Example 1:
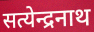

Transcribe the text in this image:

सत्येन्द्रनाथ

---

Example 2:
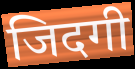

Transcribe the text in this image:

जिदगी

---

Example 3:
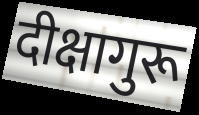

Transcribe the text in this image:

दीक्षागुरू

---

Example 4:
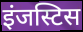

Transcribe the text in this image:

इंजस्टिस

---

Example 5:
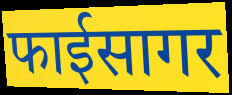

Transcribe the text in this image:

फाईसागर